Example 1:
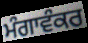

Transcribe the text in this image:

ਮੰਗਾਵੰਕਰ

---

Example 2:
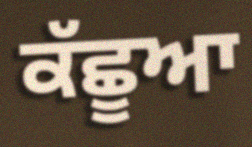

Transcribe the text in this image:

ਕੱਛੂਆ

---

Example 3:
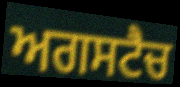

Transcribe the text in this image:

ਅਗਸਟੈਚ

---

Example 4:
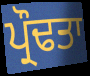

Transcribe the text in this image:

ਪ੍ਰੌਢਤਾ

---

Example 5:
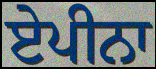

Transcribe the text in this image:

ਏਪੀਨਾ